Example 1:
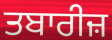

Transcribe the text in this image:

ਤਬਾਰੀਜ਼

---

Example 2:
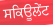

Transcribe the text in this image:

ਸਕਿਊਲੇਂਟ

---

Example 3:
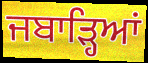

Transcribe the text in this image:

ਜਬਾੜ੍ਹਿਆਂ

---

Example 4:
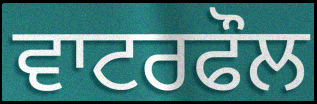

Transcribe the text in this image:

ਵਾਟਰਫੌਲ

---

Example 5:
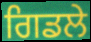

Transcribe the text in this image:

ਗਿਡਲੇ